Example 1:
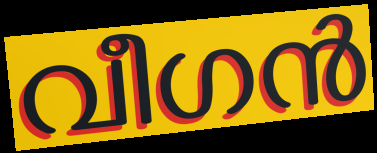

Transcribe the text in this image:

വീഗൻ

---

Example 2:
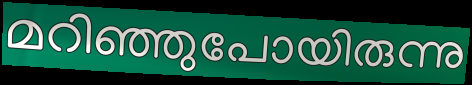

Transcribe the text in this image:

മറിഞ്ഞുപോയിരുന്നു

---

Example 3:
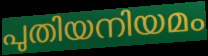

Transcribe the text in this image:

പുതിയനിയമം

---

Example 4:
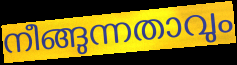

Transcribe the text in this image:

നീങ്ങുന്നതാവും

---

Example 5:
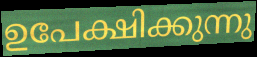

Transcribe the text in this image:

ഉപേക്ഷിക്കുന്നു